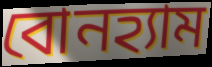
বোনহ্যাম